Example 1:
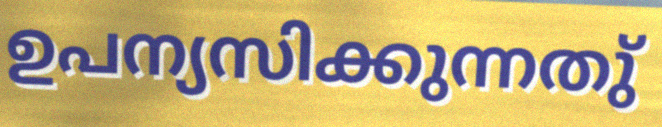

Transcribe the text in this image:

ഉപന്യസിക്കുന്നതു്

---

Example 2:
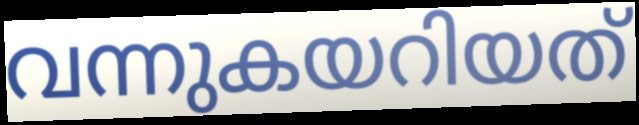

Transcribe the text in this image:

വന്നുകയറിയത്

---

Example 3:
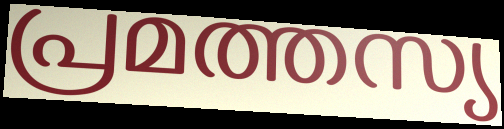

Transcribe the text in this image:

പ്രമത്തസ്യ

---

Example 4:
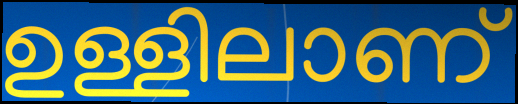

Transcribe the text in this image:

ഉള്ളിലാണ്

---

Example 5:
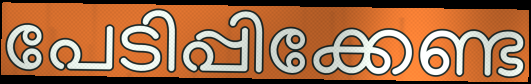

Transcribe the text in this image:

പേടിപ്പിക്കേണ്ട